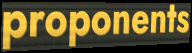
proponents